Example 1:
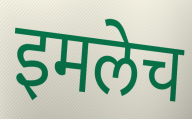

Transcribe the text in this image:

इमलेच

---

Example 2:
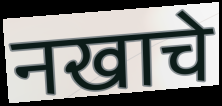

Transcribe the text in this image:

नखाचे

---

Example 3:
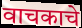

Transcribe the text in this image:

वाचकाचे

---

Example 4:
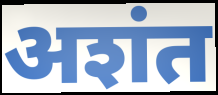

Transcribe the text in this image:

अशंत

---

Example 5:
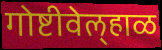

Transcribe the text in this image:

गोष्टीवेल्हाळ